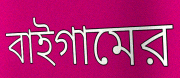
বাইগামের